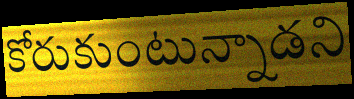
కోరుకుంటున్నాడని